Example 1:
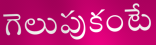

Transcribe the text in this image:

గెలుపుకంటే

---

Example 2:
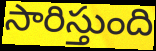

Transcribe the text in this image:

సారిస్తుంది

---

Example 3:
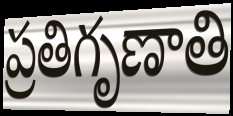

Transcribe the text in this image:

ప్రతిగృణాతి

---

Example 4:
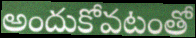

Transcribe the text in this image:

అందుకోవటంతో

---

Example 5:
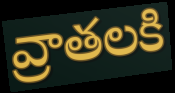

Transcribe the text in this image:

వ్రాతలకి